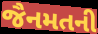
જૈનમતની